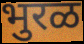
भुरळ